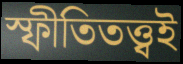
স্ফীতিতত্ত্বই